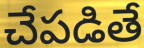
చేపడితే